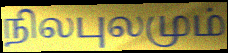
நிலபுலமும்